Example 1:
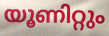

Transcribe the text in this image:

യൂണിറ്റും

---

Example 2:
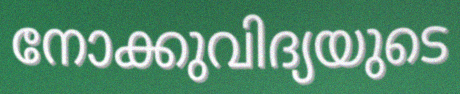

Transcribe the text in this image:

നോക്കുവിദ്യയുടെ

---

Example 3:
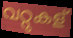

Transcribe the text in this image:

വറ്റുകള്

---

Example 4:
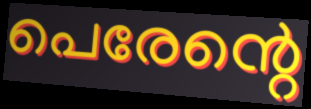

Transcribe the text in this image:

പെരേന്റെ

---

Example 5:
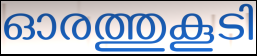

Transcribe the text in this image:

ഓരത്തുകൂടി